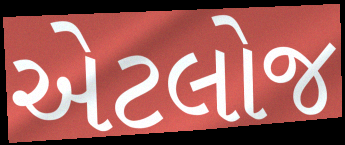
એટલોજ